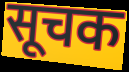
सूचक